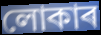
লোকাৰ